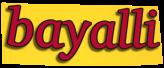
bayalli